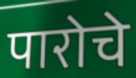
पारोचे